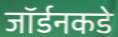
जॉर्डनकडे